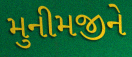
મુનીમજીને